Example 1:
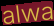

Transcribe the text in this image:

alwa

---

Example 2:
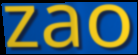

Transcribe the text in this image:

zao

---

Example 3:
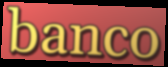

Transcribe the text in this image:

banco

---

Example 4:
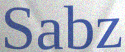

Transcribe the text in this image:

Sabz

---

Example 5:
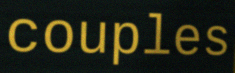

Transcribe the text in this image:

couples